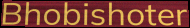
Bhobishoter